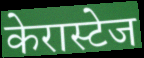
केरास्टेज